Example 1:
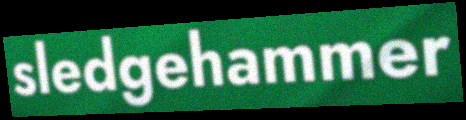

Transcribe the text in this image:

sledgehammer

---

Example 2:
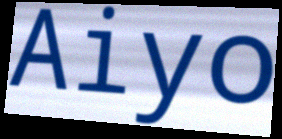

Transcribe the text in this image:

Aiyo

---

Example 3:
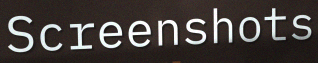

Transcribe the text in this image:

Screenshots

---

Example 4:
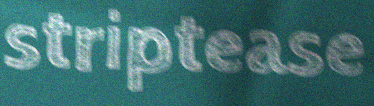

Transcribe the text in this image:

striptease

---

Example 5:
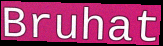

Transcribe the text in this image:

Bruhat